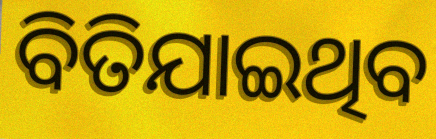
ବିତିଯାଇଥିବ